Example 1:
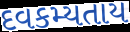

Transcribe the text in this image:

દવકમ્યતાય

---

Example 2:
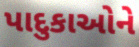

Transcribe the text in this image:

પાદુકાઓને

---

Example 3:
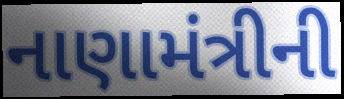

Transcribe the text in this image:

નાણામંત્રીની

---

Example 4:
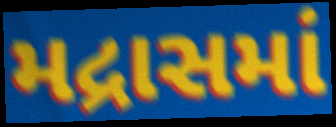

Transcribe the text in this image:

મદ્રાસમાં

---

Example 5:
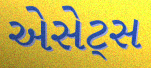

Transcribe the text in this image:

એસેટ્સ